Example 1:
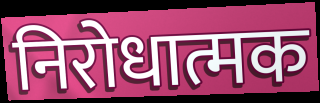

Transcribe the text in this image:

निरोधात्मक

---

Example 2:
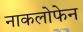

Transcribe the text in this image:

नाकलोफेन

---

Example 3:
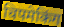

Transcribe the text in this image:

चिपमेकिंग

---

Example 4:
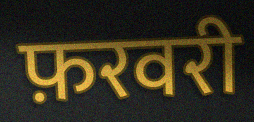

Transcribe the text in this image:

फ़रवरी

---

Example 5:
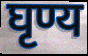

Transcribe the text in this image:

घृण्य